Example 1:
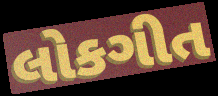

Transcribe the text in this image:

લોકગીત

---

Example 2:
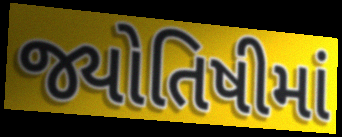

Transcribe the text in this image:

જ્યોતિષીમાં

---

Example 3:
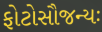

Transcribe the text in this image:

ફોટોસૌજન્યઃ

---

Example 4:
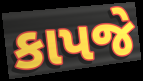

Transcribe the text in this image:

કાપજે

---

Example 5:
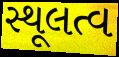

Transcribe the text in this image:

સ્થૂલત્વ